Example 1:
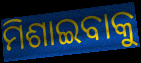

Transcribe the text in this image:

ମିଶାଇବାକୁ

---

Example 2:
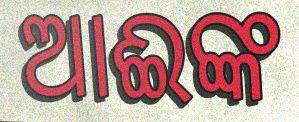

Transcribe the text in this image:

ଆଈଙ୍କ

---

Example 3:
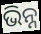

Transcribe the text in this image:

ଭିନ୍ନ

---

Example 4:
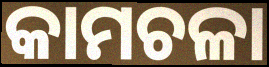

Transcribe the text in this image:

କାମଚଳା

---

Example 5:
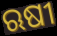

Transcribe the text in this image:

ଋଷୀ